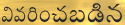
వివరించబడిన